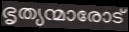
ഭൃത്യന്മാരോട്